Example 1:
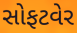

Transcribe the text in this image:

સોફટવેર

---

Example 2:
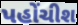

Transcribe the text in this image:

પહોંચીશ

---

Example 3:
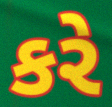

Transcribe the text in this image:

કરે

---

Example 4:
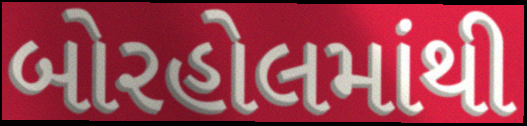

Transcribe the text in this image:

બોરહોલમાંથી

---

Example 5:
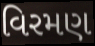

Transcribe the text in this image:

વિરમણ